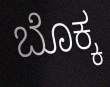
ಬೊಕ್ಕ